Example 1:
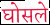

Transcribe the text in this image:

घोसले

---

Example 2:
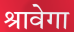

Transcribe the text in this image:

श्रावेगा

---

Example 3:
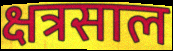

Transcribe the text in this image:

क्षत्रसाल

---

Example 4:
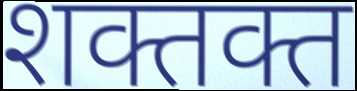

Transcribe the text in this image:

शक्तक्त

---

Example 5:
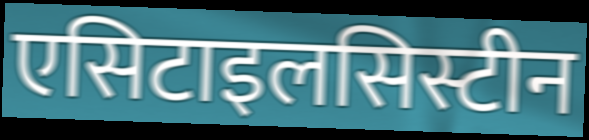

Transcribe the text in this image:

एसिटाइलसिस्टीन